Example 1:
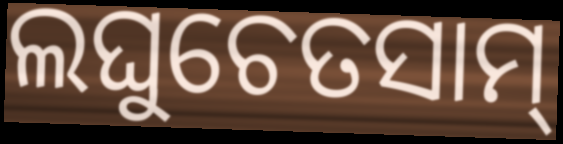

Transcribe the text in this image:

ଲଘୁଚେତସାମ୍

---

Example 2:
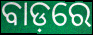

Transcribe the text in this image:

ବାଡ଼ରେ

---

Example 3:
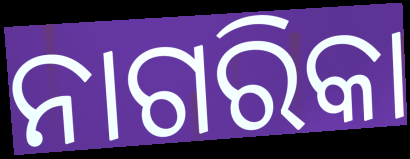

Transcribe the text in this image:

ନାଗରିକା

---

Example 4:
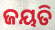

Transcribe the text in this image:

ଜୟତି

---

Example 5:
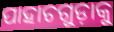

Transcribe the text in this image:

ପାହାଚଗୁଡ଼ାକୁ